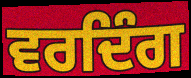
ਵਰਦਿੰਗ